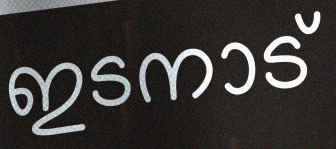
ഇടനാട്